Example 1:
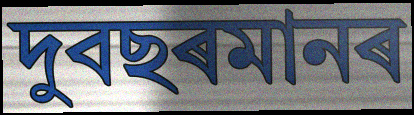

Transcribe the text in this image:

দুবছৰমানৰ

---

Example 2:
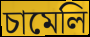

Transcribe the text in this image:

চামেলি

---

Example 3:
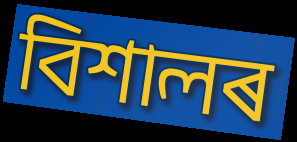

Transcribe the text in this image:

বিশালৰ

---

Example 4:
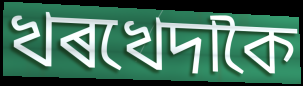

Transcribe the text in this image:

খৰখেদাকৈ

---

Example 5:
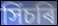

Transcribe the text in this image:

সিঁচৰি